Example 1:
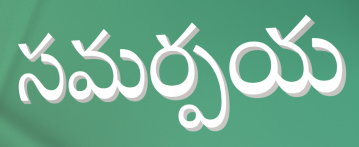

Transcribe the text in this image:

సమర్పయ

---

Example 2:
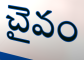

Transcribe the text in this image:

చైవం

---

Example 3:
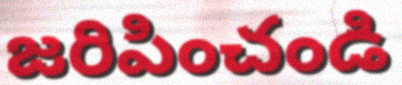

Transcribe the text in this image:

జరిపించండి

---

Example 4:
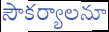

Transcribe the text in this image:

సౌకర్యాలనూ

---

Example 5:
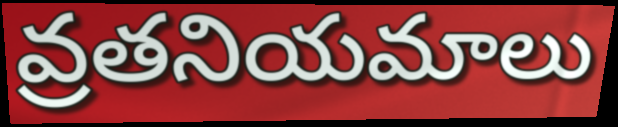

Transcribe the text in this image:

వ్రతనియమాలు